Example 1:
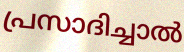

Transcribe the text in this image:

പ്രസാദിച്ചാൽ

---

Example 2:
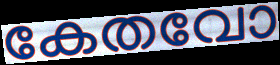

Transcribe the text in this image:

കേതവോ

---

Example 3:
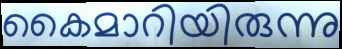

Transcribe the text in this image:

കൈമാറിയിരുന്നു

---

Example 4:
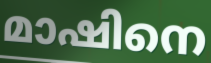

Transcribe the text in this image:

മാഷിനെ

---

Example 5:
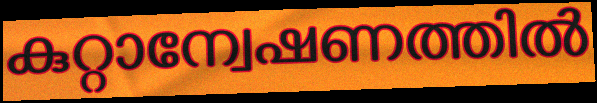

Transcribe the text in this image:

കുറ്റാന്വേഷണത്തിൽ